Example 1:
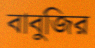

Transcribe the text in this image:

বাবুজির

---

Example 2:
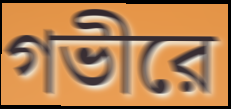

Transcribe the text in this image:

গভীরে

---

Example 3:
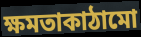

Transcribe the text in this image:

ক্ষমতাকাঠামো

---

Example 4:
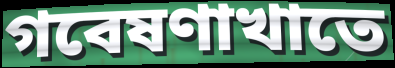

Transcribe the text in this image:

গবেষণাখাতে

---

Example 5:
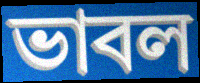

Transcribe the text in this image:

ভাবল